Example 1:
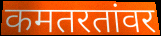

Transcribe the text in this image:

कमतरतांवर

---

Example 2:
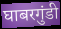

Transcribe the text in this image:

घाबरगुंडी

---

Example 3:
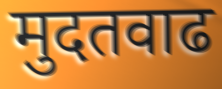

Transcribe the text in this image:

मुदतवाढ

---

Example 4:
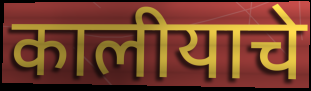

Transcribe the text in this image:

कालीयाचे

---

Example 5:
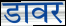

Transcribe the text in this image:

डावर